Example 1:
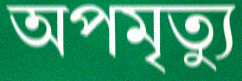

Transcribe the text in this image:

অপমৃত্যু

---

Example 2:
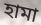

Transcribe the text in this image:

হামা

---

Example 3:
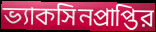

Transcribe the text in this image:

ভ্যাকসিনপ্রাপ্তির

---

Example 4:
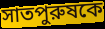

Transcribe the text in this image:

সাতপুরুষকে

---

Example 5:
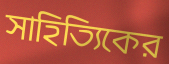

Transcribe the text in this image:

সাহিত্যিকের